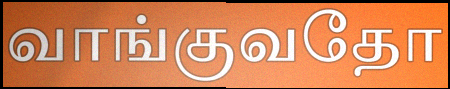
வாங்குவதோ